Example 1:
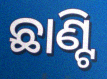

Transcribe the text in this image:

ଛାଣ୍ଟି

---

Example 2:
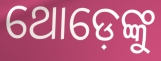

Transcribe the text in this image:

ଥୋଡ଼େଙ୍କୁ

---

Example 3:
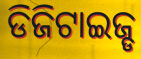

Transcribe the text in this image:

ଡିଜିଟାଇଜ୍ଡ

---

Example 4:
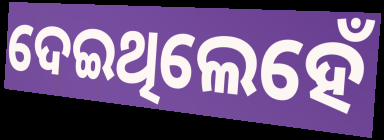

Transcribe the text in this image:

ଦେଇଥିଲେହେଁ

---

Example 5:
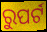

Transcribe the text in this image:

ରୁପର୍ଟ